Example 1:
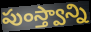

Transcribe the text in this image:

పుంస్త్వాన్ని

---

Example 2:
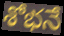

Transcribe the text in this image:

శోభనే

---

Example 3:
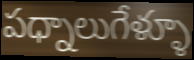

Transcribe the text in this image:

పధ్నాలుగేళ్ళూ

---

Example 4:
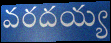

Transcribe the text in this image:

వరదయ్య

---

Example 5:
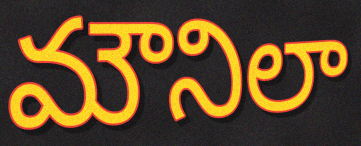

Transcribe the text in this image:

మౌనిలా